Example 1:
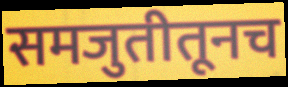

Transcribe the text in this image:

समजुतीतूनच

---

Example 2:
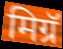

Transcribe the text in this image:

मिग्रॅ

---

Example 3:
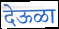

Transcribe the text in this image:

देऊळा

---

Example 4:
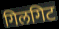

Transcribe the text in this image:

गिलगिट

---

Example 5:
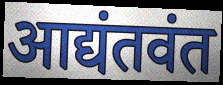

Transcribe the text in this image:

आद्यंतवंत